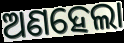
ଅଣହେଲା